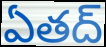
ఏతద్